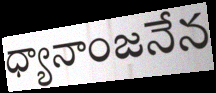
ధ్యానాంజనేన